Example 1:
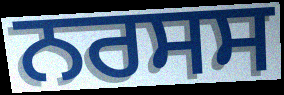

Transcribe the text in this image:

ਨਰਸਸ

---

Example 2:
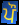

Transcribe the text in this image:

ਪੌ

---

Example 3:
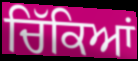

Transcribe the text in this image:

ਚਿੱਕਿਆਂ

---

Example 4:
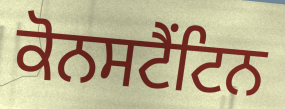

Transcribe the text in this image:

ਕੋਨਸਟੈਂਟਿਨ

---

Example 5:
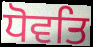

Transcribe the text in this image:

ਧੋਵਤਿ